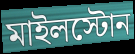
মাইলস্টোন